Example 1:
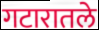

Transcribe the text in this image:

गटारातले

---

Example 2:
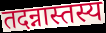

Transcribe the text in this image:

तदन्नास्तस्य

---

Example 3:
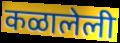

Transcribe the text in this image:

कळालेली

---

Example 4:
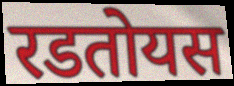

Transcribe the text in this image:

रडतोयस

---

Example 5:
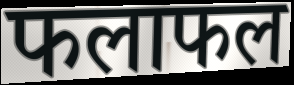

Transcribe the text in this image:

फलाफल